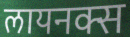
लायनक्स